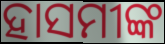
ହାସମୀଙ୍କ